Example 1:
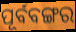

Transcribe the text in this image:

ପୂର୍ବବଙ୍ଗର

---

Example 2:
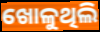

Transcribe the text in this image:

ଖୋଳୁଥିଲି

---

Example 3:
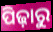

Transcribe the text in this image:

ପିଢ଼ାରୁ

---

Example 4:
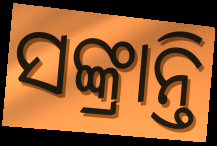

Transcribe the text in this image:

ସଙ୍କ୍ରାନ୍ତି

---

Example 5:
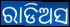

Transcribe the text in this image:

ରାଡିଅସ